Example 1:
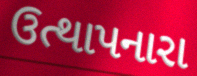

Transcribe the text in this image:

ઉત્થાપનારા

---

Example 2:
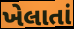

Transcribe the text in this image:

ખેલાતાં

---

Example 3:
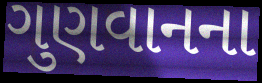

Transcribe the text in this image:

ગુણવાનના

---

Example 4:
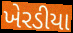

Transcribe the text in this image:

ખેરડીયા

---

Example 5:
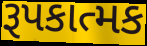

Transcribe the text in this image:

રૂપકાત્મક